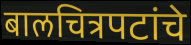
बालचित्रपटांचे